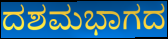
ದಶಮಭಾಗದ